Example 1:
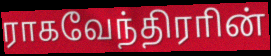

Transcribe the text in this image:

ராகவேந்திரரின்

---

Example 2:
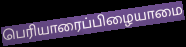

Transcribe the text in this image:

பெரியாரைப்பிழையாமை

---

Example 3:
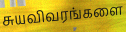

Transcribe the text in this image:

சுயவிவரங்களை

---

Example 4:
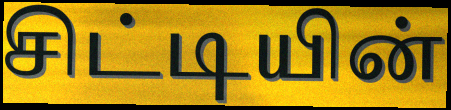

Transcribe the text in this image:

சிட்டியின்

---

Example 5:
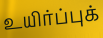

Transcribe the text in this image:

உயிர்ப்புக்